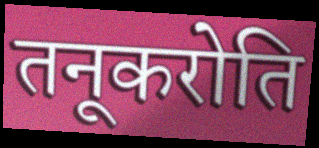
तनूकरोति